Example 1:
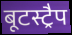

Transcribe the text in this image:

बूटस्ट्रैप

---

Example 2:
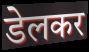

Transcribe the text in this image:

डेलकर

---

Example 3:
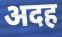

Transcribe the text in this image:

अदह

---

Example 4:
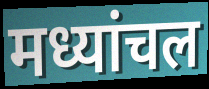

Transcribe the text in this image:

मध्यांचल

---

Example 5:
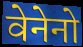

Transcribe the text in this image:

वेनेनो